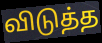
விடுத்த